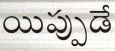
యిప్పుడే